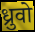
ध्रुवो